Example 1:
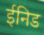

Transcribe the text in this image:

ईनिड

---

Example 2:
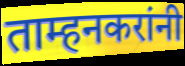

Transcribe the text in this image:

ताम्हनकरांनी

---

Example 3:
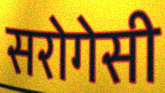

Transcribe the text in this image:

सरोगेसी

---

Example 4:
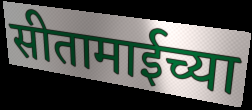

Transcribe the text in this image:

सीतामाईच्या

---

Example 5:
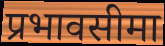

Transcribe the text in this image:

प्रभावसीमा